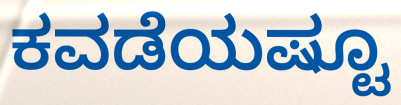
ಕವಡೆಯಷ್ಟೂ